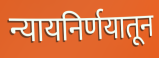
न्यायनिर्णयातून